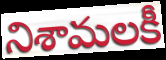
నిశామలకీ